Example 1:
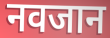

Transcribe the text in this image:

नवजान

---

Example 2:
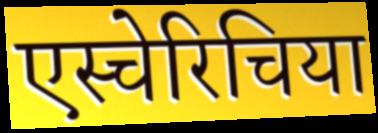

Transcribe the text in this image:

एस्चेरिचिया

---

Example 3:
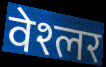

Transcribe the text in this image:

वेश्लर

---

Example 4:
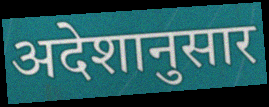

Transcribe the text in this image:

अदेशानुसार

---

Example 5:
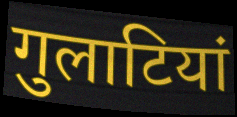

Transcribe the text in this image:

गुलाटियां